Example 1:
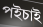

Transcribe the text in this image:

পইচাই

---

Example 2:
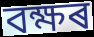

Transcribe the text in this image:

বক্ষৰ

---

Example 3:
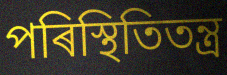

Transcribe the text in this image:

পৰিস্থিতিতন্ত্ৰ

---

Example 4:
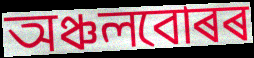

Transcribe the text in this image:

অঞ্চলবোৰৰ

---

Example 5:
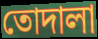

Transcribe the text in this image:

তোদালা